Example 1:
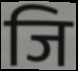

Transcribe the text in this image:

जि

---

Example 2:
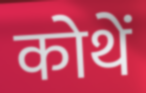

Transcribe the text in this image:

कोथें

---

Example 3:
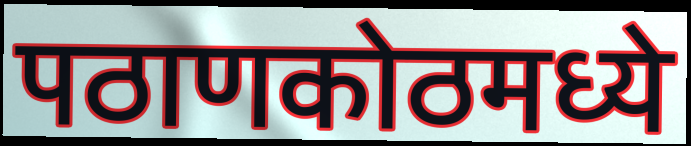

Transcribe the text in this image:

पठाणकोठमध्ये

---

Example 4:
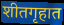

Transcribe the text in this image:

शीतगृहात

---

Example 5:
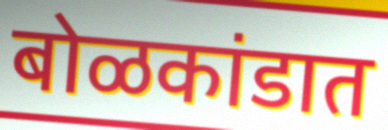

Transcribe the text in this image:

बोळकांडात